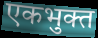
एकभुक्त